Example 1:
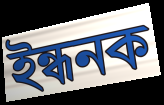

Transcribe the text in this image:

ইন্ধনক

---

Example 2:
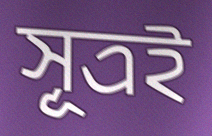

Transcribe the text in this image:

সূত্ৰই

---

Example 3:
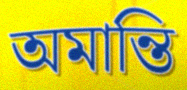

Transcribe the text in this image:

অমান্তি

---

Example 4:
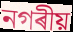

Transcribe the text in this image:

নগৰীয়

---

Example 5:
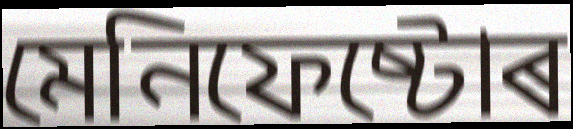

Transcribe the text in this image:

মেনিফেষ্টোৰ